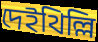
দেইথিল্লি